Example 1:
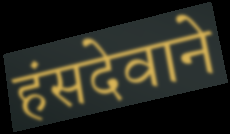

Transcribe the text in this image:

हंसदेवाने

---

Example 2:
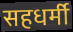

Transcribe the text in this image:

सहधर्मी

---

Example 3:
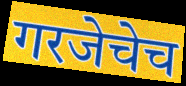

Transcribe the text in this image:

गरजेचेच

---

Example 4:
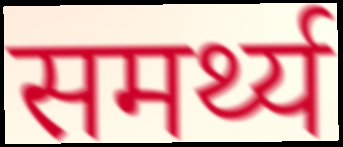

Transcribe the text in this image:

समर्थ्य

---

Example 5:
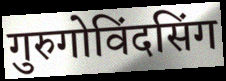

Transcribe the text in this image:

गुरुगोविंदसिंग